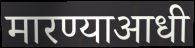
मारण्याआधी